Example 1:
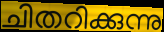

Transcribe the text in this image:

ചിതറിക്കുന്നു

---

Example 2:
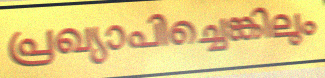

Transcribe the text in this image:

പ്രഖ്യാപിച്ചെങ്കിലും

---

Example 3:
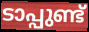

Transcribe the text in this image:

ടാപ്പുണ്ട്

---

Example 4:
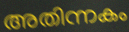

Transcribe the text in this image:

അതിന്നകം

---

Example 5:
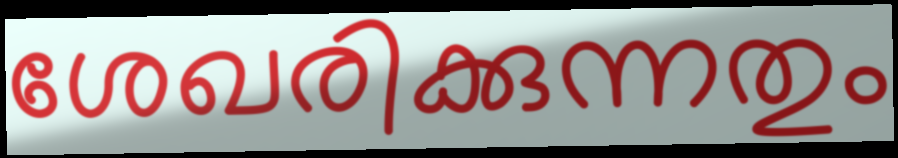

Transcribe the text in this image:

ശേഖരിക്കുന്നതും